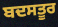
ਬਦਸਤੂਰ